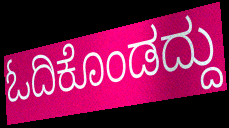
ಓದಿಕೊಂಡದ್ದು